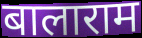
बालाराम